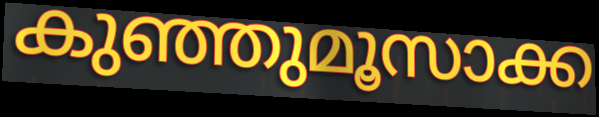
കുഞ്ഞുമൂസാക്ക